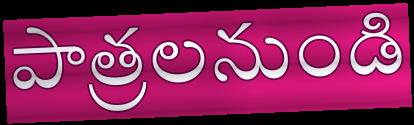
పాత్రలనుండి